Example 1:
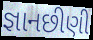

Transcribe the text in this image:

જ્ઞાનછીણી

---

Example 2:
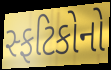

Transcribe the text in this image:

સ્ફટિકોનો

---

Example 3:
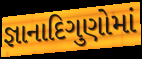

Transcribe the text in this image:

જ્ઞાનાદિગુણોમાં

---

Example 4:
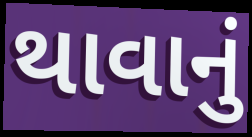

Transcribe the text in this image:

થાવાનું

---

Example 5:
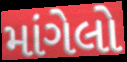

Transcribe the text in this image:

માંગેલો